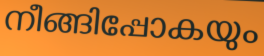
നീങ്ങിപ്പോകയും